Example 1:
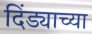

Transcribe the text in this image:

दिंड्याच्या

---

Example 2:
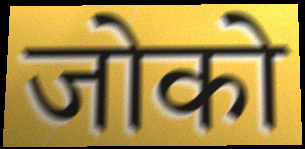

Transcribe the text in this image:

जोको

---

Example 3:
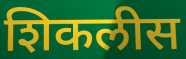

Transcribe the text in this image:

शिकलीस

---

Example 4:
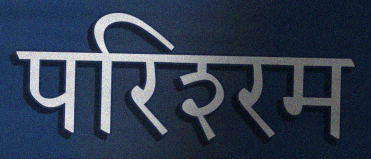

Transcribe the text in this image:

परिश्रम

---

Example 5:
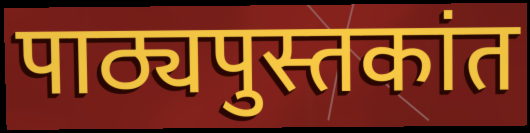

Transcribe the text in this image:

पाठ्यपुस्तकांत